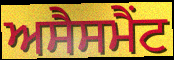
ਅਸੈਸਮੈਂਟ